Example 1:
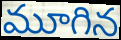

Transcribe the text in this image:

మూగిన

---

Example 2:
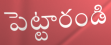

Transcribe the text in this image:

పెట్టారండి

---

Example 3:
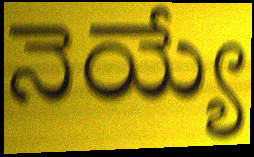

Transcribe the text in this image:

నెయ్యే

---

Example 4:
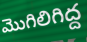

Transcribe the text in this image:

మొగిలిగిద్ద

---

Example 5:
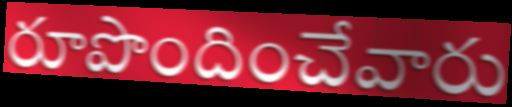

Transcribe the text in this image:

రూపొందించేవారు